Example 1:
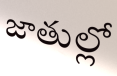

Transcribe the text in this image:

జాతుల్లో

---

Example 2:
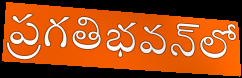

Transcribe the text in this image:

ప్రగతిభవన్‌లో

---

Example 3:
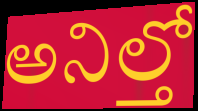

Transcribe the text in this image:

అనిల్తో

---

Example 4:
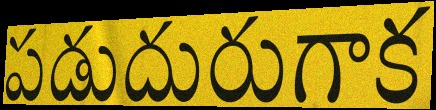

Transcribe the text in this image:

పడుదురుగాక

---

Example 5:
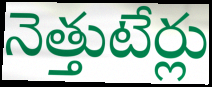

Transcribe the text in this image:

నెత్తుటేర్లు